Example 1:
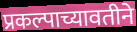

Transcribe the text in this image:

प्रकल्पाच्यावतीने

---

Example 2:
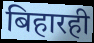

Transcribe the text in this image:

बिहारही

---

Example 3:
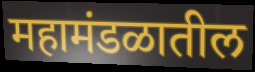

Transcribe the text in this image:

महामंडळातील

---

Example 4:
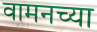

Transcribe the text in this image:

वामनच्या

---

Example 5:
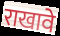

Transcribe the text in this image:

राखावे